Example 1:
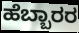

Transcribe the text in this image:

ಹೆಬ್ಬಾರರ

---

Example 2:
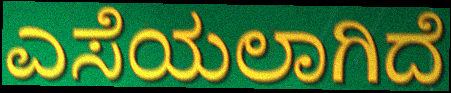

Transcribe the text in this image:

ಎಸೆಯಲಾಗಿದೆ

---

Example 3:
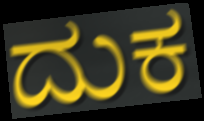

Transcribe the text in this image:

ದುಕ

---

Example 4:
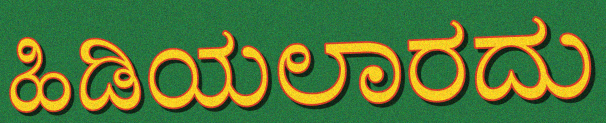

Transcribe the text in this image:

ಹಿಡಿಯಲಾರದು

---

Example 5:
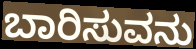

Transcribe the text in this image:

ಬಾರಿಸುವನು